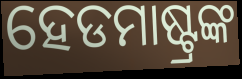
ହେଡମାଷ୍ଟ୍ରଙ୍କ